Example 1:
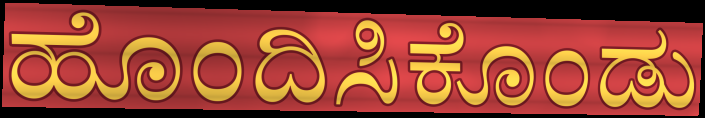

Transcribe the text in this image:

ಹೊಂದಿಸಿಕೊಂಡು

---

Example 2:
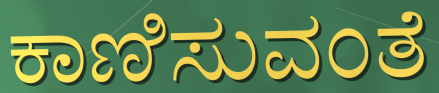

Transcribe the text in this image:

ಕಾಣಿಸುವಂತೆ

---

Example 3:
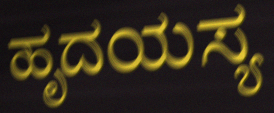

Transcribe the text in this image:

ಹೃದಯಸ್ಯ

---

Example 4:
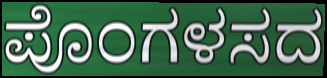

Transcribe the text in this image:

ಪೊಂಗಳಸದ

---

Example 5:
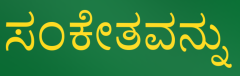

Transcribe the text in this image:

ಸಂಕೇತವನ್ನು